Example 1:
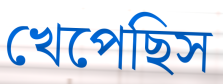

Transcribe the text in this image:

খেপেছিস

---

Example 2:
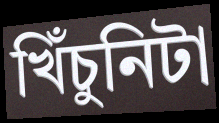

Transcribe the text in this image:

খিঁচুনিটা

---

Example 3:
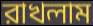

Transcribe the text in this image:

রাখলাম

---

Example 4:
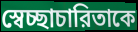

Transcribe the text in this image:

স্বেচ্ছাচারিতাকে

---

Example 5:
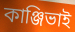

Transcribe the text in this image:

কাঞ্জিভাই